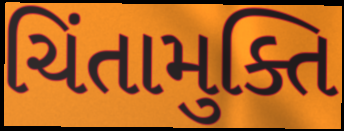
ચિંતામુક્તિ